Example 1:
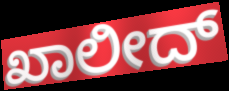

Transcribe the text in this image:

ಖಾಲೀದ್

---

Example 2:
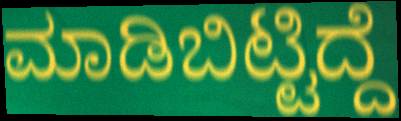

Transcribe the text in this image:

ಮಾಡಿಬಿಟ್ಟಿದ್ದೆ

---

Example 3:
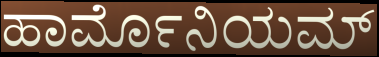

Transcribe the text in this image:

ಹಾರ್ಮೊನಿಯಮ್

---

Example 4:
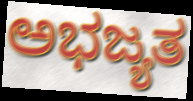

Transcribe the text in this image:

ಅಭಜ್ಯತ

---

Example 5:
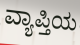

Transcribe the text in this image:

ವ್ಯಾಪ್ತಿಯ